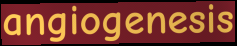
angiogenesis